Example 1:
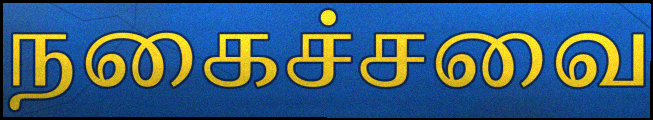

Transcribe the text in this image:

நகைச்சவை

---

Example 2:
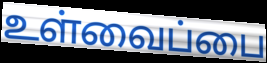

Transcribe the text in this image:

உள்வைப்பை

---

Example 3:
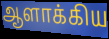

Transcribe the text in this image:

ஆளாக்கிய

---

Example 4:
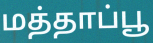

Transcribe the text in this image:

மத்தாப்பூ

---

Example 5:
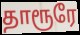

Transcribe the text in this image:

தாரூரே